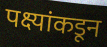
पक्ष्यांकडून